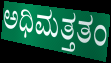
ಅಧಿಮತ್ತತಂ